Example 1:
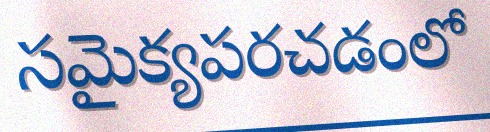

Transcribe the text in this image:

సమైక్యపరచడంలో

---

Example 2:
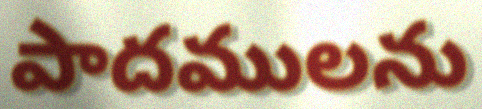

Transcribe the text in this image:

పాదములను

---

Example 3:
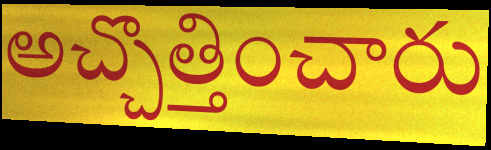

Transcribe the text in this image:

అచ్చొత్తించారు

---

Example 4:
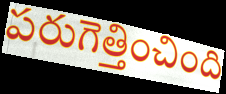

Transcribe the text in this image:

పరుగెత్తించింది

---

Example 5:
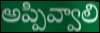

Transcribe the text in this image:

అప్పివ్వాలి